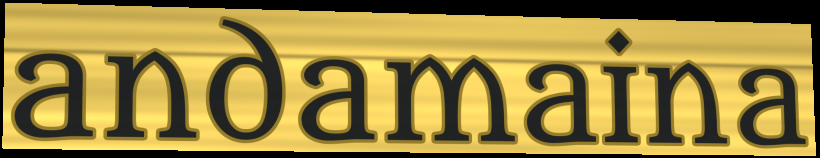
andamaina